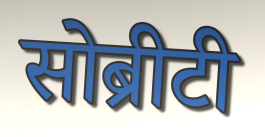
सोब्रीटी